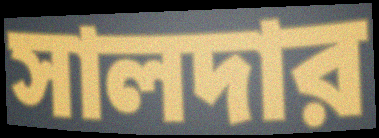
সালদার